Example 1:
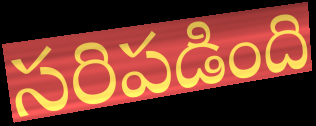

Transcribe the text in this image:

సరిపడింది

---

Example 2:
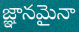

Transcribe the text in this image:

జ్ఞానమైనా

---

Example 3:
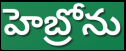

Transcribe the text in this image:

హెబ్రోను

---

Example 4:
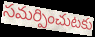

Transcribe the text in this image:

సమర్పించుటకు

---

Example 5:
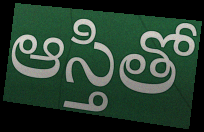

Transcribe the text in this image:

ఆస్తితో